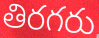
తిరగరు